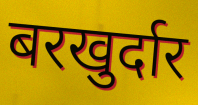
बरखुर्दार